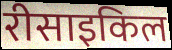
रीसाइकिल